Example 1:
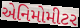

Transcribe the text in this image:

એનિમોમીટર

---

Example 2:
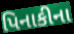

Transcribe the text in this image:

પિનાકીના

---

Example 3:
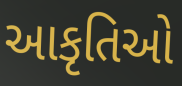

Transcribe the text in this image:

આકૃતિઓ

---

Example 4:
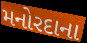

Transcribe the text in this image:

મનોરદાના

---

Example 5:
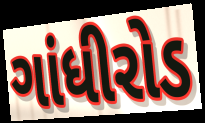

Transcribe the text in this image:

ગાંધીરોડ